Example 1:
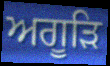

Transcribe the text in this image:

ਅਗੂੜਿ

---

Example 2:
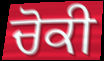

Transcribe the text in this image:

ਚੋਕੀ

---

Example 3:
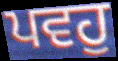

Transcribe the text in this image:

ਪਵਹੁ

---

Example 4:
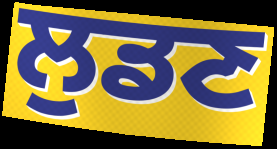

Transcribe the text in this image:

ਲੁਡਣ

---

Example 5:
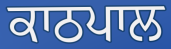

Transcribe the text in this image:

ਕਾਠਪਾਲ